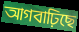
আগবাঢ়িছে